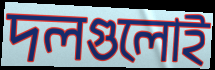
দলগুলোই